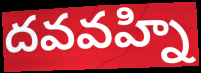
దవవహ్ని